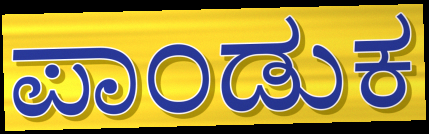
ಪಾಂಡುಕ